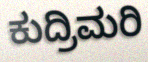
ಕುದ್ರಿಮರಿ